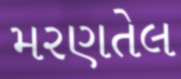
મરણતેલ